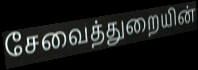
சேவைத்துறையின்